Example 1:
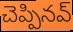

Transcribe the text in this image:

చెప్పినవ్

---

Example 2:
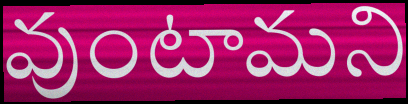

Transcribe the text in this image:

వుంటామని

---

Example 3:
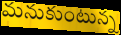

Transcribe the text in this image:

మనుకుంటున్న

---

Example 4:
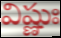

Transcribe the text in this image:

విష్ణుః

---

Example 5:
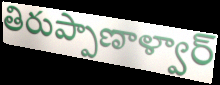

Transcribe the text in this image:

తిరుప్పాణాళ్వార్